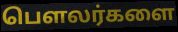
பௌலர்களை